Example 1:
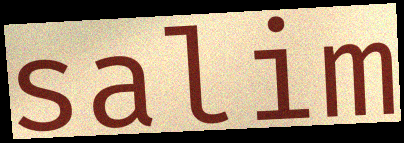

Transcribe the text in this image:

salim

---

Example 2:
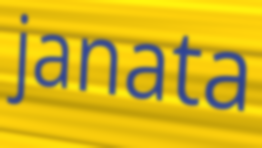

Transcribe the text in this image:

janata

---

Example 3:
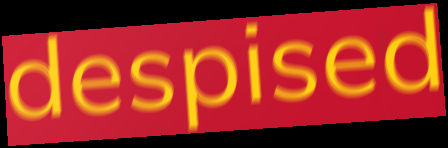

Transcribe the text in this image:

despised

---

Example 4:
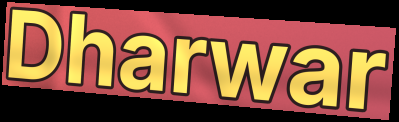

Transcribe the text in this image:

Dharwar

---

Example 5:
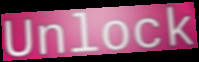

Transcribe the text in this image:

Unlock